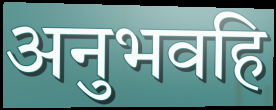
अनुभवहि